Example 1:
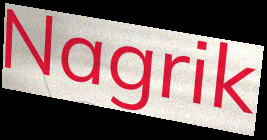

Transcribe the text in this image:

Nagrik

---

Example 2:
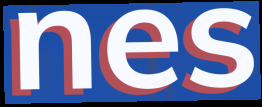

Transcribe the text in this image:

nes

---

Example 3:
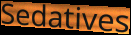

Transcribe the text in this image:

Sedatives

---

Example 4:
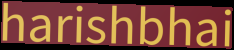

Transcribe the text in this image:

harishbhai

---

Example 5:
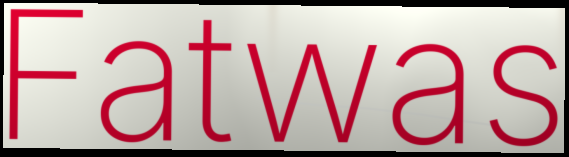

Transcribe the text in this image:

Fatwas